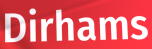
Dirhams